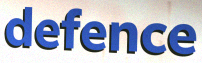
defence